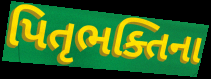
પિતૃભક્તિના